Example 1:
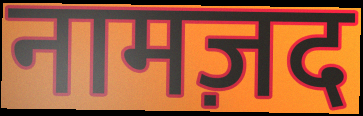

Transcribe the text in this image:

नामज़द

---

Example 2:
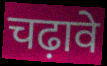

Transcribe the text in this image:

चढ़ावे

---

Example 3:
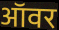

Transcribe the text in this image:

ऑवर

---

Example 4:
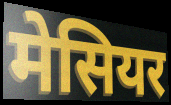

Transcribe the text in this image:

मेसियर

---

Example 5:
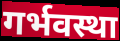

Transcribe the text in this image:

गर्भवस्था